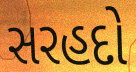
સરહદો